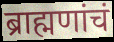
ब्राह्मणांचं